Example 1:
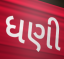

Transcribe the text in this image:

ધણી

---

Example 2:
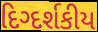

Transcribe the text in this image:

દિગ્દર્શકીય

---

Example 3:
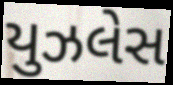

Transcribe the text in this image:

યુઝલેસ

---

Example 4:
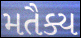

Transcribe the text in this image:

મતૈક્ય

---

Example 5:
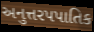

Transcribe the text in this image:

અનુત્તરપપાતિક